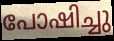
പോഷിച്ചു